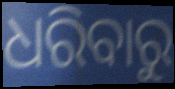
ଧରିବାରୁ